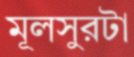
মূলসুরটা